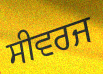
ਸੀਵਰਜ